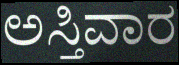
ಅಸ್ತಿವಾರ